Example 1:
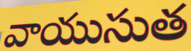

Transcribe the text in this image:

వాయుసుత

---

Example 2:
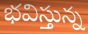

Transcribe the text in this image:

భవిస్తున్న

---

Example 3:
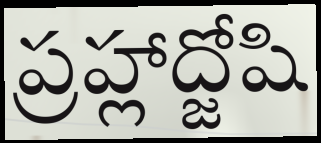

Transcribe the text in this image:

ప్రహ్లాద్జోషి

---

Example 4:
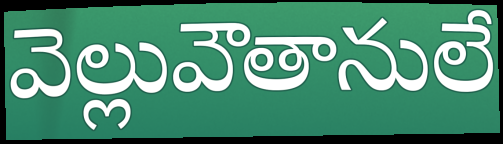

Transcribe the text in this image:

వెల్లువౌతానులే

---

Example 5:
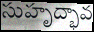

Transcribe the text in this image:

సుహృద్భావ